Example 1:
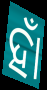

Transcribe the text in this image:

ହାଁ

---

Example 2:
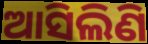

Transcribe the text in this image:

ଆସିଲିଣି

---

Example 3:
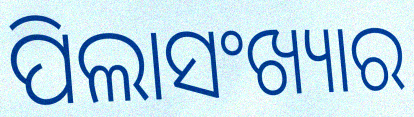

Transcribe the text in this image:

ପିଲାସଂଖ୍ୟାର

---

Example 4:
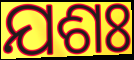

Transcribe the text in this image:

ଯଶଃ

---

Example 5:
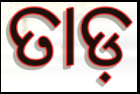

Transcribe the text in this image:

ତାଡ଼